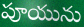
పూయును